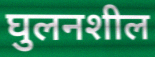
घुलनशील